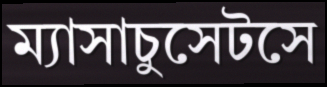
ম্যাসাচুসেটসে